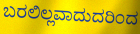
ಬರಲಿಲ್ಲವಾದುದರಿಂದ